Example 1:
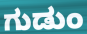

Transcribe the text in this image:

ಗುಡುಂ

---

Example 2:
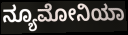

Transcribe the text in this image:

ನ್ಯೂಮೋನಿಯಾ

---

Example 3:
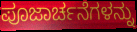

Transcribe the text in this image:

ಪೂಜಾರ್ಚನೆಗಳನ್ನು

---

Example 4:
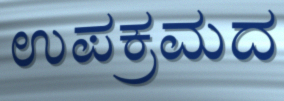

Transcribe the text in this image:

ಉಪಕ್ರಮದ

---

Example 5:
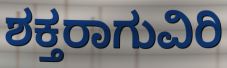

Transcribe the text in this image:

ಶಕ್ತರಾಗುವಿರಿ